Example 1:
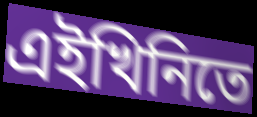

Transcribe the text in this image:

এইখিনিতে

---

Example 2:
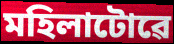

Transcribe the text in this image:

মহিলাটোৱে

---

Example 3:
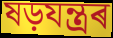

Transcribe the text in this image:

ষড়যন্ত্ৰৰ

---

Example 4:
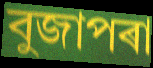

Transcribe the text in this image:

বুজাপৰা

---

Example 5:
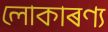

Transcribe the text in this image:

লোকাৰণ্য